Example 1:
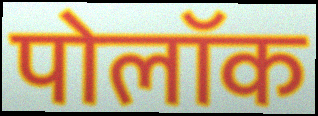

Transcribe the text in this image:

पोलॉक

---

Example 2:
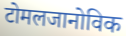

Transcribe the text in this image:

टोमलजानोविक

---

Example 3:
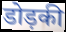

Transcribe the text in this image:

डोड़की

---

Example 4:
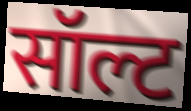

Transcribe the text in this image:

सॉल्‍ट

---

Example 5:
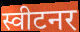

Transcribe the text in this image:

स्वीटनर